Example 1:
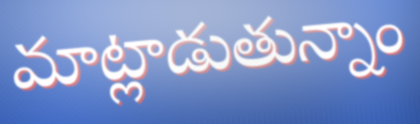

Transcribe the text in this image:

మాట్లాడుతున్నాం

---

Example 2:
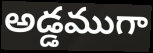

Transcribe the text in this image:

అడ్డముగా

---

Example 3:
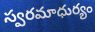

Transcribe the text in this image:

స్వరమాధుర్యం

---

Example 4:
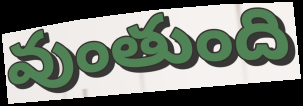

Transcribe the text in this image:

వుంతుంది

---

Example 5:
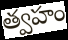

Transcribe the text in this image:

త్వహం